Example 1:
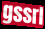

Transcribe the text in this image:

gssrl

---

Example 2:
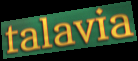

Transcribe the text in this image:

talavia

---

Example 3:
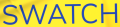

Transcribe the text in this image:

SWATCH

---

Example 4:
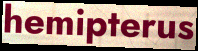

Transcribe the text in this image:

hemipterus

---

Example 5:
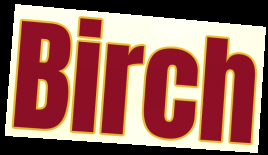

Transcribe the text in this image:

Birch